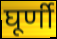
घूर्णी